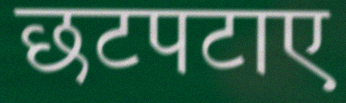
छटपटाए